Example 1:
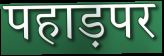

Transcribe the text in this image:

पहाड़पर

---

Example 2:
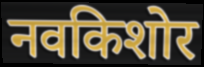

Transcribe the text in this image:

नवकिशोर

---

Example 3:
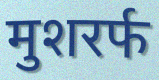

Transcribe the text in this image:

मुशरर्फ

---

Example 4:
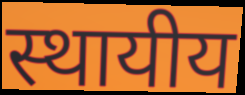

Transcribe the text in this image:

स्थायीय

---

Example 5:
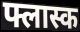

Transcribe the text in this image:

फ्लास्क